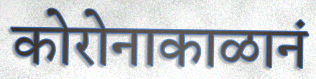
कोरोनाकाळानं